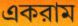
একরাম